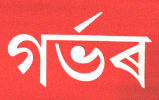
গৰ্ভৰ